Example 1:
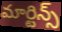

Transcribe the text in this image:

మార్టిన్స్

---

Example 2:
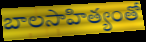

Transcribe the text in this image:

బాలసాహిత్యంతో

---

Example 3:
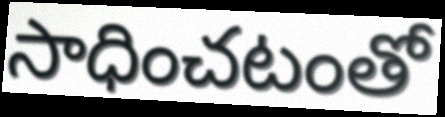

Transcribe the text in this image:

సాధించటంతో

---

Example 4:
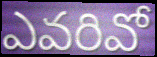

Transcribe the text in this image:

ఎవరివో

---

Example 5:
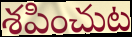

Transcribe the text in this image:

శపించుట